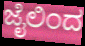
ಜೈಲಿಂದ